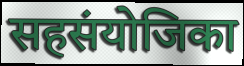
सहसंयोजिका